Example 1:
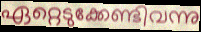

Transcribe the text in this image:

ഏറ്റെടുക്കേണ്ടിവന്നു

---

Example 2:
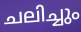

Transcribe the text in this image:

ചലിച്ചും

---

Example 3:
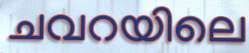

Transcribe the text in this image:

ചവറയിലെ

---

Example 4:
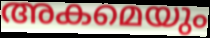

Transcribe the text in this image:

അകമെയും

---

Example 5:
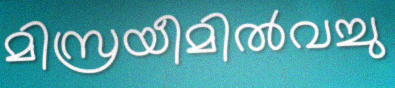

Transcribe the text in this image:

മിസ്രയീമിൽവച്ചു